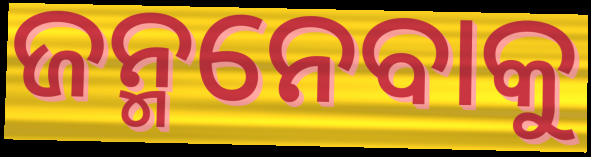
ଜନ୍ମନେବାକୁ